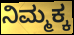
ನಿಮ್ಮಕ್ಕ